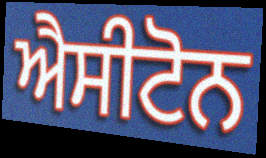
ਐਸੀਟੋਨ